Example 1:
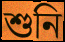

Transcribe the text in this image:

শুনি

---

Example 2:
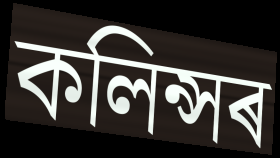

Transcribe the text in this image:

কলিন্সৰ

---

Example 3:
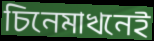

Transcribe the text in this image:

চিনেমাখনেই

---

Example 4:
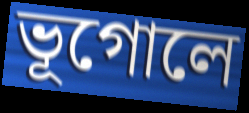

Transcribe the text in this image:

ভূগোলে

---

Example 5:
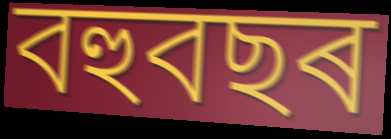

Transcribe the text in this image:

বহুবছৰ